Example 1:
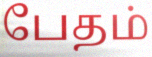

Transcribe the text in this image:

பேதம்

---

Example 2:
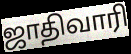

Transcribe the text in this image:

ஜாதிவாரி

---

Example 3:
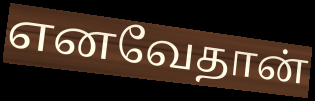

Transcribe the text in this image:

எனவேதான்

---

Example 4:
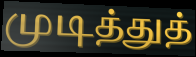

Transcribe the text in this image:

முடித்துத்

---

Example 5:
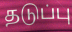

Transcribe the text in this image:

தடுப்பு